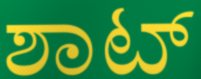
ಶಾಟ್